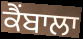
ਕੈਂਬਾਲਾ